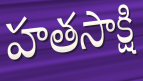
హతసాక్షి